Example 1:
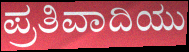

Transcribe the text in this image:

ಪ್ರತಿವಾದಿಯು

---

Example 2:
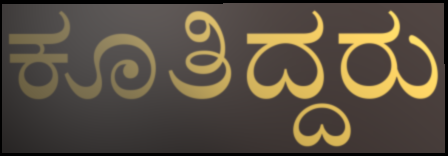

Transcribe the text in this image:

ಕೂತಿದ್ದರು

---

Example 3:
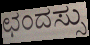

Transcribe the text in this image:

ಛಂದಸ್ಸು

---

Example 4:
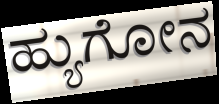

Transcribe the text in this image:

ಹ್ಯುಗೋನ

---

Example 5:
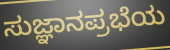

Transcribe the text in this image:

ಸುಜ್ಞಾನಪ್ರಭೆಯ